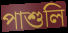
পাশুলি